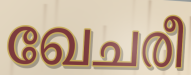
ഖേചരീ